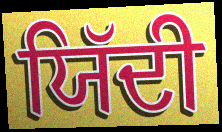
ਯਿੱਦੀ